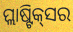
ପ୍ଲାଷ୍ଟିକ୍‌ସର